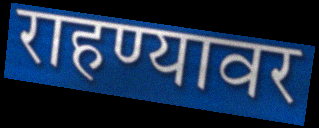
राहण्यावर